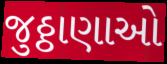
જુઠ્ઠાણાઓ